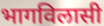
भागविलासी